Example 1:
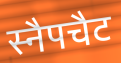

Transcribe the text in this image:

स्नैपचैट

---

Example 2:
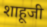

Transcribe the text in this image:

शाहूजी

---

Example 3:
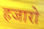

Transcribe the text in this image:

हजारो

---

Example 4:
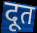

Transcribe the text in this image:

दूत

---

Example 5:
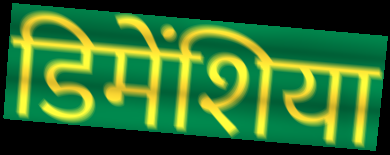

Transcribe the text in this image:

डिमेंशिया